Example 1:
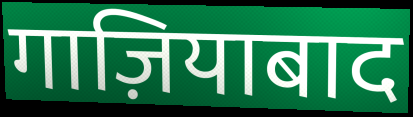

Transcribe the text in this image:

गाज़ियाबाद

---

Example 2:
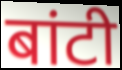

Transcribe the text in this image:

बांटी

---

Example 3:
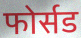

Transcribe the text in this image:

फोर्सड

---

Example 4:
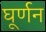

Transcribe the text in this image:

घूर्णन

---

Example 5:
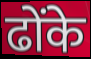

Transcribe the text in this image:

ढोंके